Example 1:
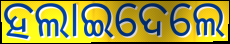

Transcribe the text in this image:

ହଲାଇଦେଲେ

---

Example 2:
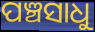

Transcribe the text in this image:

ପଞ୍ଚସାଧୁ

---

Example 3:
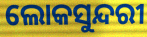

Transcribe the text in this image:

ଲୋକସୁନ୍ଦରୀ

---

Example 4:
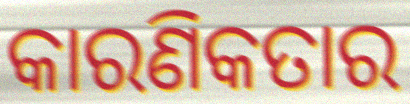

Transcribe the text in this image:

କାରଣିକତାର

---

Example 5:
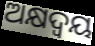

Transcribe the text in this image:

ଅକ୍ଷଦ୍ବୟ